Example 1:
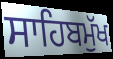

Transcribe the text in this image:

ਸਾਹਿਬਮੁੱਖ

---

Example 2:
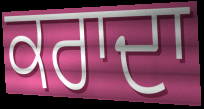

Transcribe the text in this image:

ਕਰਾਦਾ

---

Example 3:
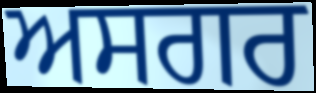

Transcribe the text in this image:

ਅਸਗਰ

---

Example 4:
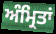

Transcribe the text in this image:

ਅੰਮ੍ਰਿਤਾਂ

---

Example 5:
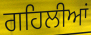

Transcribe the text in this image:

ਗਹਿਲੀਆਂ